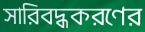
সারিবদ্ধকরণের